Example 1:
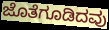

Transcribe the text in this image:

ಜೊತೆಗೂಡಿದವು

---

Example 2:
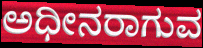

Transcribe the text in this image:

ಅಧೀನರಾಗುವ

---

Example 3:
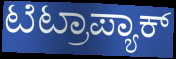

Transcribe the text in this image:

ಟೆಟ್ರಾಪ್ಯಾಕ್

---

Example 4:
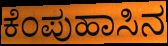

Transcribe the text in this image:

ಕೆಂಪುಹಾಸಿನ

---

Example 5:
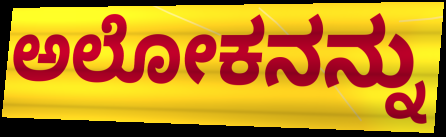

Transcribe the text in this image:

ಅಲೋಕನನ್ನು